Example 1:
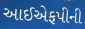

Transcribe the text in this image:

આઈએફપીની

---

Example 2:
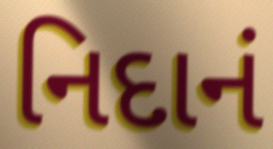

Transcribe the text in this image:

નિદાનં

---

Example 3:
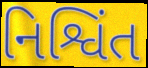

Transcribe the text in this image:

નિશ્વિંત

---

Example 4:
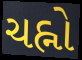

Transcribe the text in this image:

ચહ્નો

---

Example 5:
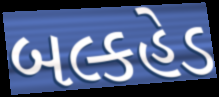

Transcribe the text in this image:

બલ્કહેડ